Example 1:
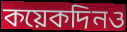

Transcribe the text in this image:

কয়েকদিনও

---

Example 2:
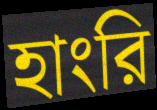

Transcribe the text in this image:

হাংরি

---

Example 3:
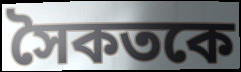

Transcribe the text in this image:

সৈকতকে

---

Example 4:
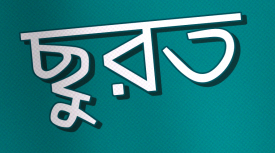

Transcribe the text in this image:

ছুরত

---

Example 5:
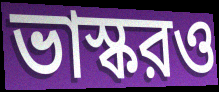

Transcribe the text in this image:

ভাস্করও